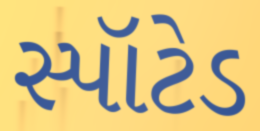
સ્પૉટેડ